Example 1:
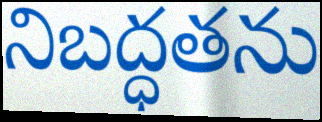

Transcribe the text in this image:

నిబద్ధతను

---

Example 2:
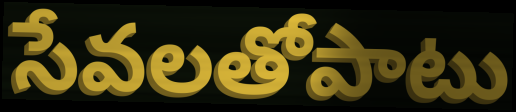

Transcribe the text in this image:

సేవలతోపాటు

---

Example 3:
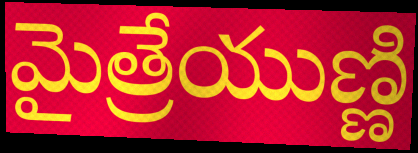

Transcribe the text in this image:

మైత్రేయుణ్ణి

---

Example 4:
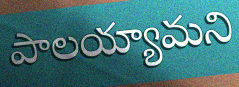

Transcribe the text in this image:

పాలయ్యామని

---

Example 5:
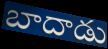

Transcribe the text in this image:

బాదాడు